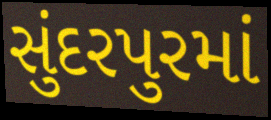
સુંદરપુરમાં